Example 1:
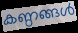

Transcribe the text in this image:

കണ്ഠങ്ങൾ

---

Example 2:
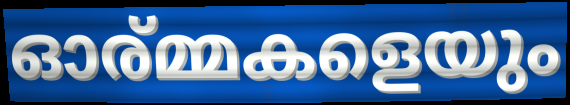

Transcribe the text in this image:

ഓര്മ്മകളെയും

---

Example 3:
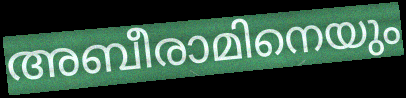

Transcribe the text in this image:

അബീരാമിനെയും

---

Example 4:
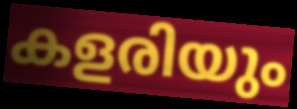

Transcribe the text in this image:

കളരിയും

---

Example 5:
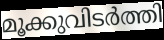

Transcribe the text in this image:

മൂക്കുവിടർത്തി